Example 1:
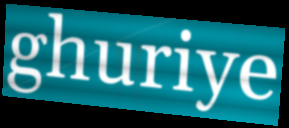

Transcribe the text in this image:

ghuriye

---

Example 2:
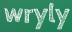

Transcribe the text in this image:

wryly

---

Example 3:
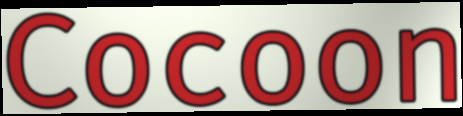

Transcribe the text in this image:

Cocoon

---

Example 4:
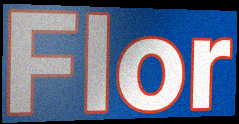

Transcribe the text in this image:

Flor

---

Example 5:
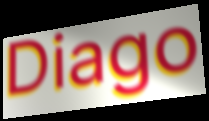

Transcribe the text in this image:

Diago